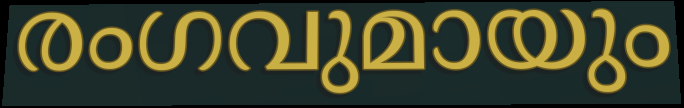
രംഗവുമായും